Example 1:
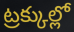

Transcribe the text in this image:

ట్రక్కుల్లో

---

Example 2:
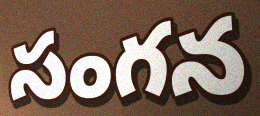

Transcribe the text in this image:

సంగన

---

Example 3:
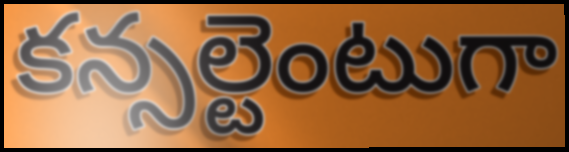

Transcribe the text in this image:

కన్సల్టెంటుగా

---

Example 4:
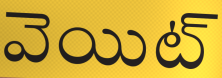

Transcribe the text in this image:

వెయిట్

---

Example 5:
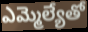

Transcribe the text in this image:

ఎమ్మెల్యేతో